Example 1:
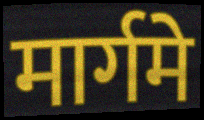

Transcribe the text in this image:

मार्गमे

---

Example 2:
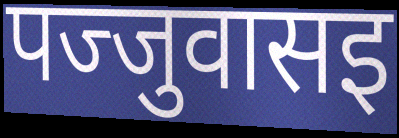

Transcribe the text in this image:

पज्जुवासइ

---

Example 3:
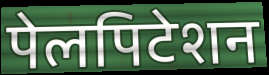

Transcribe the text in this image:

पेलपिटेशन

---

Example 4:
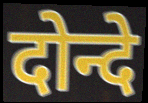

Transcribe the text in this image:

दोन्दे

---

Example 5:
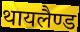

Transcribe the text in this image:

थायलैण्ड